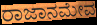
ರಾಜಾನಮೇವ